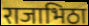
राजाभिठा